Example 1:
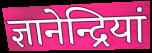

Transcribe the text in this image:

ज्ञानेन्द्रियां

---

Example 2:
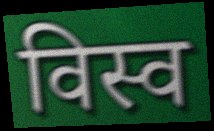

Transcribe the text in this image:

विस्व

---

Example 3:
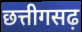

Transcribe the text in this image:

छत्तीगसढ़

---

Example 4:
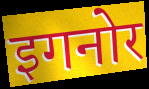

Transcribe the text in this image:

इगनोर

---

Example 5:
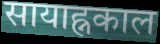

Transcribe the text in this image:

सायाह्नकाल